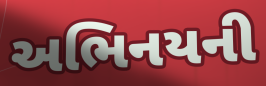
અભિનયની